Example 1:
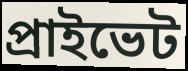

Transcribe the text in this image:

প্ৰাইভেট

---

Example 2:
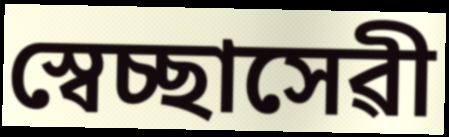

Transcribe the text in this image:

স্বেচ্ছাসেৱী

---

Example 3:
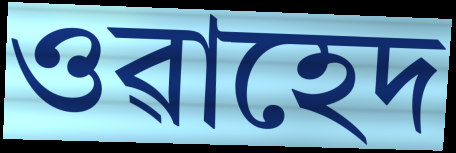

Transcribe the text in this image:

ওৱাহেদ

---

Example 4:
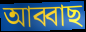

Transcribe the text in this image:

আব্বাছ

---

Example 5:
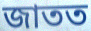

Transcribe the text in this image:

জাতত